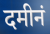
दमीनं